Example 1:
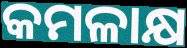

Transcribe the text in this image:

କମଳାକ୍ଷ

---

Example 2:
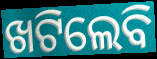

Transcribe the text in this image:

ଖଟିଲେବି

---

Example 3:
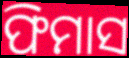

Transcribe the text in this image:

ଫିମାସ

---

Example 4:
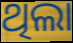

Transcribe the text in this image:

ଥିଲା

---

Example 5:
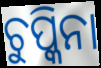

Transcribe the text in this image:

ଚୁପ୍କିନା